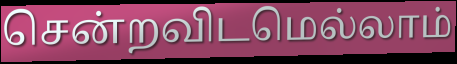
சென்றவிடமெல்லாம்